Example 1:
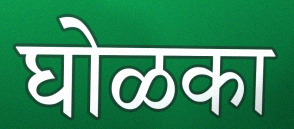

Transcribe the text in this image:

घोळका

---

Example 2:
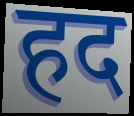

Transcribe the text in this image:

हद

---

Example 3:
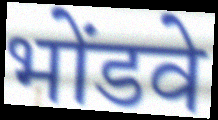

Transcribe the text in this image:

भोंडवे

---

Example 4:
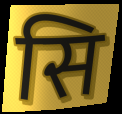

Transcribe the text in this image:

सि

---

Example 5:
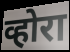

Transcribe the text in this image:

व्होरा